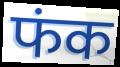
फंक